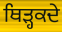
ਥਿੜ੍ਹਕਦੇ